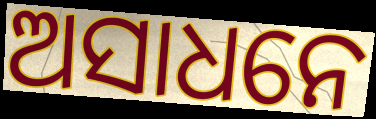
ଅସାଧନେ